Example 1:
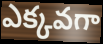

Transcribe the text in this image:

ఎక్కవగా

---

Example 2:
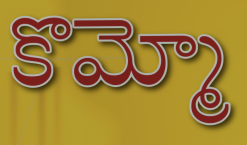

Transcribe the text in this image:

కొమ్మో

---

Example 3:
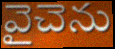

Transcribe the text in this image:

వైచెను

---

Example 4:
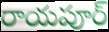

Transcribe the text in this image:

రాయపూర్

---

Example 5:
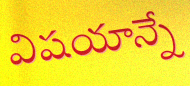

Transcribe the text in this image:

విషయాన్నే